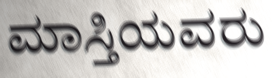
ಮಾಸ್ತಿಯವರು